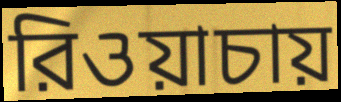
রিওয়াচায়